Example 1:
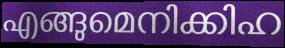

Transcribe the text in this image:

എങ്ങുമെനിക്കിഹ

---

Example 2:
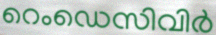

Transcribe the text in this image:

റെംഡെസിവിർ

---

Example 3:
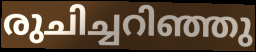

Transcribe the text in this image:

രുചിച്ചറിഞ്ഞു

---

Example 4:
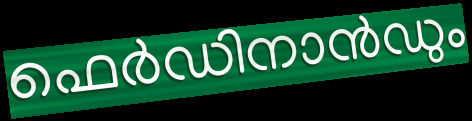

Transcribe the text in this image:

ഫെർഡിനാൻഡും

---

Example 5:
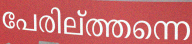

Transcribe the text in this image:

പേരില്ത്തന്നെ